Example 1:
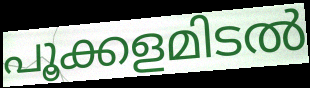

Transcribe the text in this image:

പൂക്കളമിടൽ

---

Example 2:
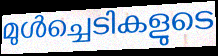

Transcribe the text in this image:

മുൾച്ചെടികളുടെ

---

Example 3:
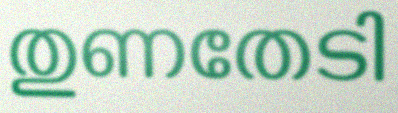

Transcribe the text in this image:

തുണതേടി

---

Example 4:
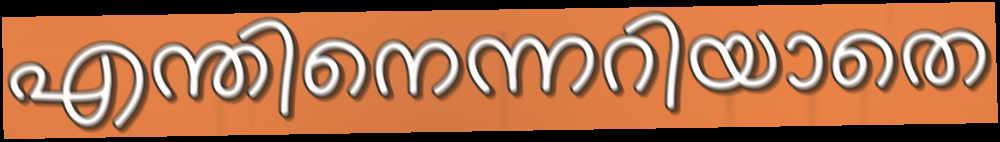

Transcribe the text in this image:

എന്തിനെന്നറിയാതെ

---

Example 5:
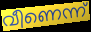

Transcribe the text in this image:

വീണെന്ന്